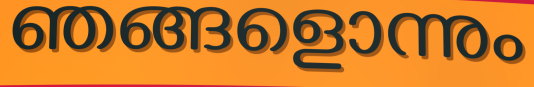
ഞങ്ങളൊന്നും